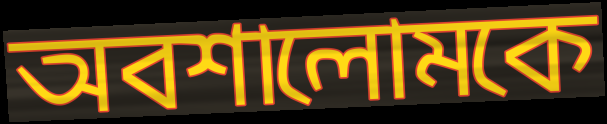
অবশালোমকে